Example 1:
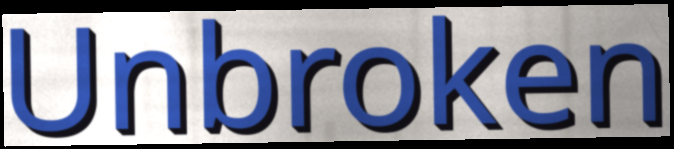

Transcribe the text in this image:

Unbroken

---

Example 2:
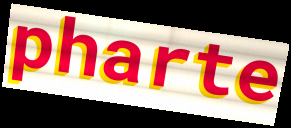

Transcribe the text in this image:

pharte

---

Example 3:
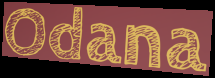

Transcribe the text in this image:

Odana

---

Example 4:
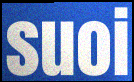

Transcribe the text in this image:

suoi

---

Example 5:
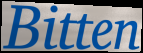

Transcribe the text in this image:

Bitten